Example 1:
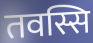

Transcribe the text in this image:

तवस्सि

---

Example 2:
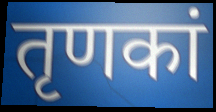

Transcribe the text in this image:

तृणकां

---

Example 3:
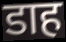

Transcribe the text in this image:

डाह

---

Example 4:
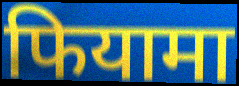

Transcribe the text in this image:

फियामा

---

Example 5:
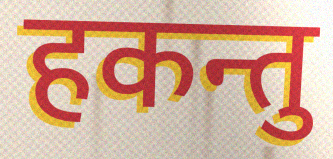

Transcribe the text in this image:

हकन्तु